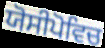
ਯੋਸੀਪੋਵਿਚ